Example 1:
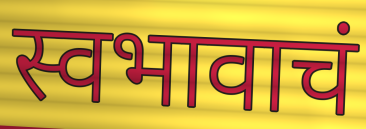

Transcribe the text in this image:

स्वभावाचं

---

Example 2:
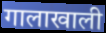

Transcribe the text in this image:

गालाखाली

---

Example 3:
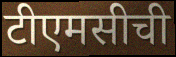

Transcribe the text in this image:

टीएमसीची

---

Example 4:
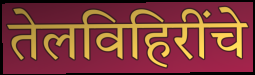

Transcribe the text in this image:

तेलविहिरींचे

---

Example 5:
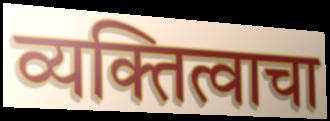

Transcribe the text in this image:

व्यक्तित्वाचा